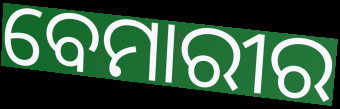
ବେମାରୀର